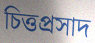
চিত্তপ্রসাদ